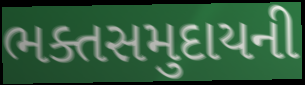
ભક્તસમુદાયની